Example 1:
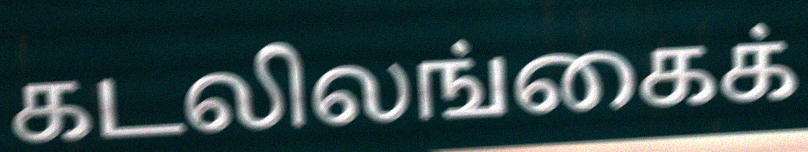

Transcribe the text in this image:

கடலிலங்கைக்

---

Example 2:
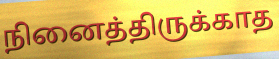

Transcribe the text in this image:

நினைத்திருக்காத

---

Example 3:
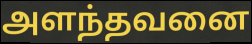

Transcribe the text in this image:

அளந்தவனை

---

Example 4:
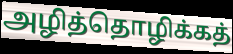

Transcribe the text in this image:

அழித்தொழிக்கத்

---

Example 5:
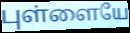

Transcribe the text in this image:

புள்ளையே